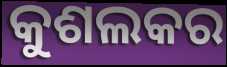
କୁଶଲକର